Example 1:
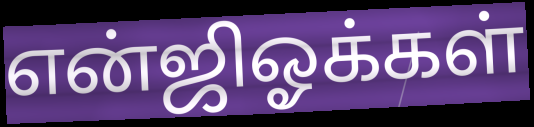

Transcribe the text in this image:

என்ஜிஓக்கள்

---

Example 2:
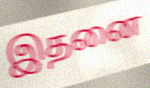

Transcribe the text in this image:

இதனை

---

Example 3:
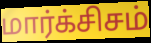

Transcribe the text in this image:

மார்க்சிசம்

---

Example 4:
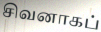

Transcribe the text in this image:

சிவனாகப்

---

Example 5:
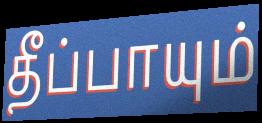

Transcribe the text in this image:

தீப்பாயும்